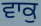
ਵਾਕੁ